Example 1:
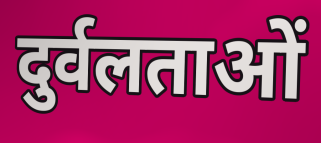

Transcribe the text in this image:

दुर्वलताओं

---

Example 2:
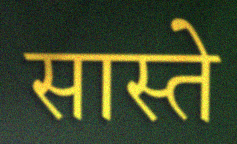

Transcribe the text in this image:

सास्ते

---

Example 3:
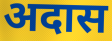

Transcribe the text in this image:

अदास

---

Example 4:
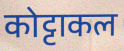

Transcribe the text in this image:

कोट्टाकल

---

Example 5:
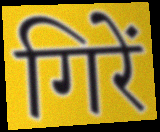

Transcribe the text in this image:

गिरें